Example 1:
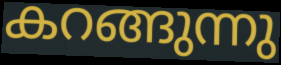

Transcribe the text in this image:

കറങ്ങുന്നു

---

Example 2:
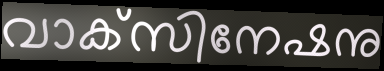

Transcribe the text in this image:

വാക്‌സിനേഷനു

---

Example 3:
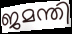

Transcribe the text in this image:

ജമന്തി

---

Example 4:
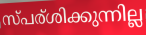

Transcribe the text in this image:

സ്പര്ശിക്കുന്നില്ല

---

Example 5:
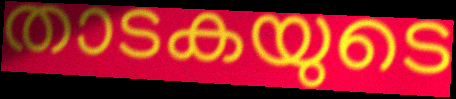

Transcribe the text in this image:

താടകയുടെ